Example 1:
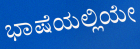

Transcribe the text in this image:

ಭಾಷೆಯಲ್ಲಿಯೇ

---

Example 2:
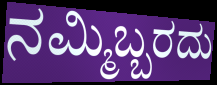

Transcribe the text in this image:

ನಮ್ಮಿಬ್ಬರದು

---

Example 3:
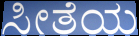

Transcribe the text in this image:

ಸೀತೆಯ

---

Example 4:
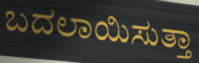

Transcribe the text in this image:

ಬದಲಾಯಿಸುತ್ತಾ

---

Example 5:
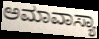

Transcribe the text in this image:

ಅಮಾವಾಸ್ಯಾ